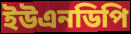
ইউএনডিপি